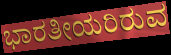
ಭಾರತೀಯರಿರುವ